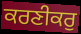
ਕਰਣੀਕਰੁ